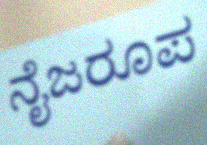
ನೈಜರೂಪ